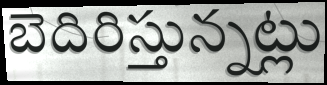
బెదిరిస్తున్నట్లు